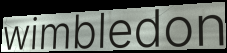
wimbledon